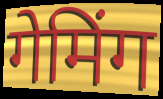
गेमिंग